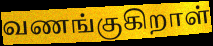
வணங்குகிறாள்